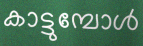
കാട്ടുമ്പോൾ